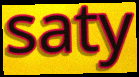
saty